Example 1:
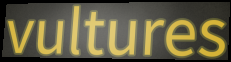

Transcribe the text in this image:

vultures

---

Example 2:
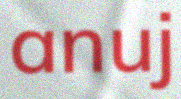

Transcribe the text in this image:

anuj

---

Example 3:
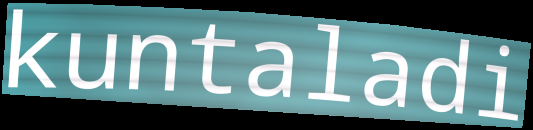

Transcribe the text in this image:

kuntaladi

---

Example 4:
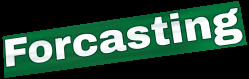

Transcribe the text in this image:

Forcasting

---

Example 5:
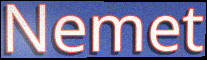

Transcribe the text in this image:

Nemet